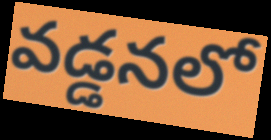
వడ్డనలో